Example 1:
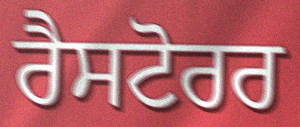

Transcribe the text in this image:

ਰੈਸਟੋਰਰ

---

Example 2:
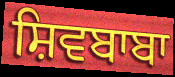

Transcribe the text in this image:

ਸ਼ਿਵਬਾਬਾ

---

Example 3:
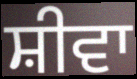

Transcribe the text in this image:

ਸ਼ੀਵਾ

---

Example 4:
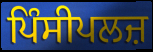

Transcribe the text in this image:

ਪਿੰਸੀਪਲਜ਼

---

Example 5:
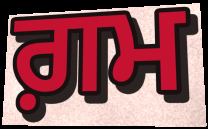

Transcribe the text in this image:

ਗ਼ਮ